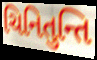
ચિનિતુન્તિ